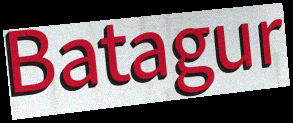
Batagur